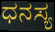
ಧನಸ್ಯ